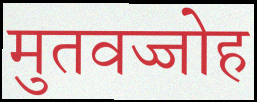
मुतवज्जोह